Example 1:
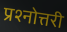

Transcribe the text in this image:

प्रश्नोत्तरी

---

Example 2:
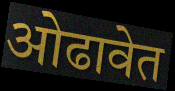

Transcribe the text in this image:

ओढावेत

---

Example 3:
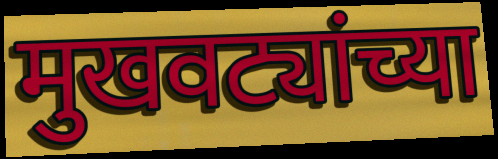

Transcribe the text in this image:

मुखवट्यांच्या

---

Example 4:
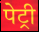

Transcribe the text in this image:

पेट्री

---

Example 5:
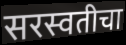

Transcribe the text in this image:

सरस्वतीचा